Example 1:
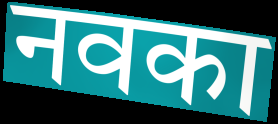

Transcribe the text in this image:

नवका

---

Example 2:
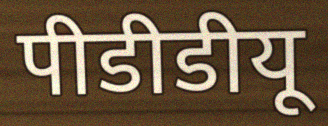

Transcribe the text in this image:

पीडीडीयू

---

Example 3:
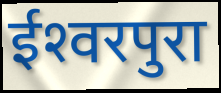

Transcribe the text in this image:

ईश्वरपुरा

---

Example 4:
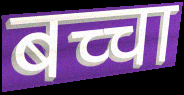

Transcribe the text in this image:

बच्‍चा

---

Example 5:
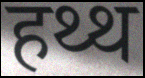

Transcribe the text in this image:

हथ्थ